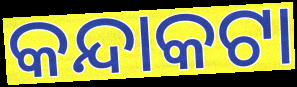
କନ୍ଦାକଟା